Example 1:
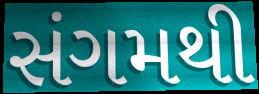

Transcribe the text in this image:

સંગમથી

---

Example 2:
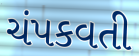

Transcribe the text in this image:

ચંપકવતી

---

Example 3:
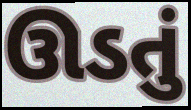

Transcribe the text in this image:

ઊડતું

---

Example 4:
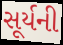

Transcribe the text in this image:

સૂર્યની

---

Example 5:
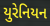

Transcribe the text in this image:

યુરેનિયન